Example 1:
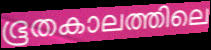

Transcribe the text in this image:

ഭൂതകാലത്തിലെ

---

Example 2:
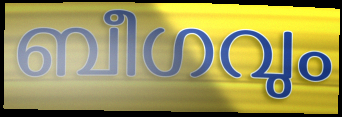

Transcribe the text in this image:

ബീഗവും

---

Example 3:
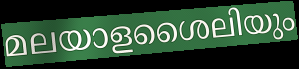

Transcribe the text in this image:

മലയാളശൈലിയും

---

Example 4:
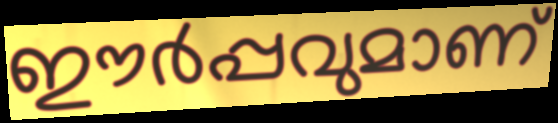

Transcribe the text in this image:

ഈർപ്പവുമാണ്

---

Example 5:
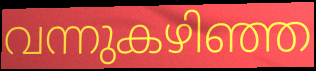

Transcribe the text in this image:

വന്നുകഴിഞ്ഞ